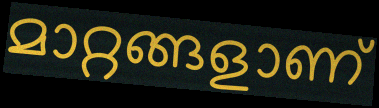
മാറ്റങ്ങളാണ്